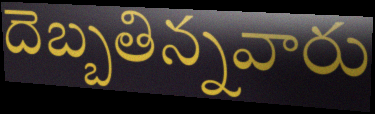
దెబ్బతిన్నవారు